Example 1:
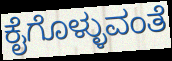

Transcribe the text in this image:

ಕೈಗೊಳ್ಳುವಂತೆ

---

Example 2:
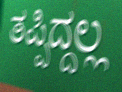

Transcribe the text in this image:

ತಪ್ಪಿದ್ದಲ್ಲ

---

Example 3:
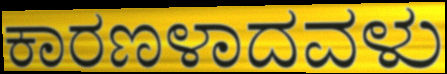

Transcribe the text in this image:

ಕಾರಣಳಾದವಳು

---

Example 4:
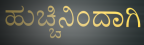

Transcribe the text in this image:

ಹುಚ್ಚಿನಿಂದಾಗಿ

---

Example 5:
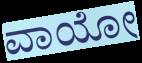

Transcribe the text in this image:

ವಾಯೋ